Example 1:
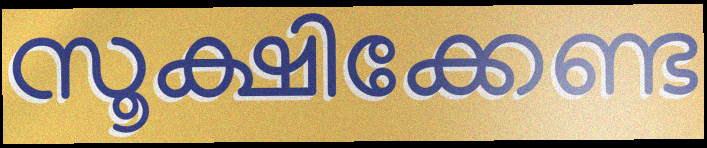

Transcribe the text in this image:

സൂക്ഷിക്കേണ്ട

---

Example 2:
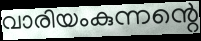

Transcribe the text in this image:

വാരിയംകുന്നന്റെ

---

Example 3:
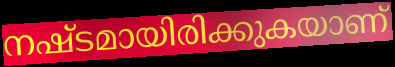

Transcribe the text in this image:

നഷ്ടമായിരിക്കുകയാണ്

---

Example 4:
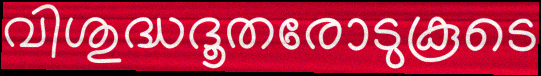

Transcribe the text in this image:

വിശുദ്ധദൂതരോടുകൂടെ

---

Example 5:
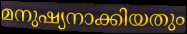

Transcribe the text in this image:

മനുഷ്യനാക്കിയതും